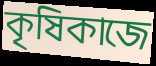
কৃষিকাজে